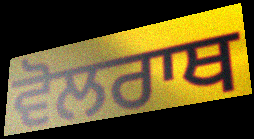
ਵੋਲਰਾਥ